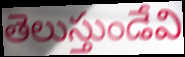
తెలుస్తుండేవి